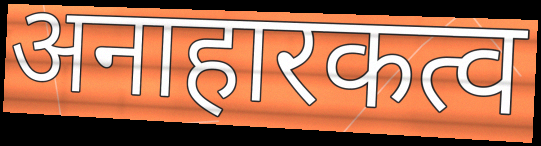
अनाहारकत्व